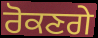
ਰੋਕਣਗੇ